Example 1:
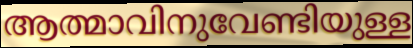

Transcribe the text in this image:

ആത്മാവിനുവേണ്ടിയുള്ള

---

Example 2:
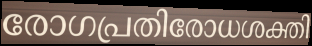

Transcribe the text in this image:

രോഗപ്രതിരോധശക്തി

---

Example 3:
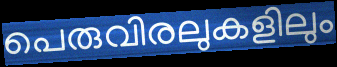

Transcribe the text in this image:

പെരുവിരലുകളിലും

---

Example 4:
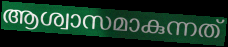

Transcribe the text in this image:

ആശ്വാസമാകുന്നത്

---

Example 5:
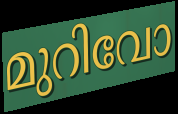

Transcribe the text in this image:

മുറിവോ